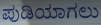
ಪುಡಿಯಾಗಲು